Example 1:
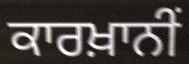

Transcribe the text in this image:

ਕਾਰਖ਼ਾਨੀਂ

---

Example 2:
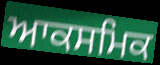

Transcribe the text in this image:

ਆਕਸਮਿਕ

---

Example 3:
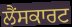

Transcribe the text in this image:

ਲੈਂਸਕਾਰਟ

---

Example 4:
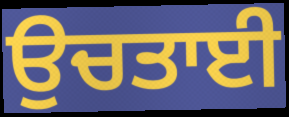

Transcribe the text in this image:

ਉਚਤਾਈ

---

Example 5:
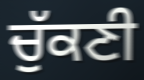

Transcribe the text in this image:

ਚੁੱਕਣੀ